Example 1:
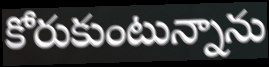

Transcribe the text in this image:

కోరుకుంటున్నాను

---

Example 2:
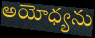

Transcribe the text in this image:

అయోధ్యను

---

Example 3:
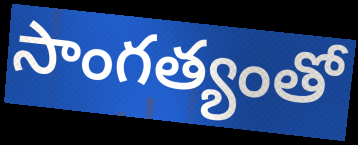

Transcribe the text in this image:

సాంగత్యంతో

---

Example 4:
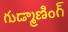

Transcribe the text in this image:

గుడ్మాణింగ్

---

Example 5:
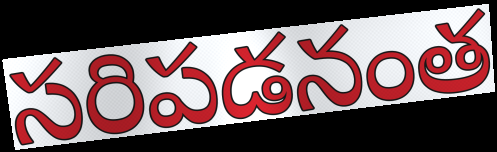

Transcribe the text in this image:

సరిపడనంత